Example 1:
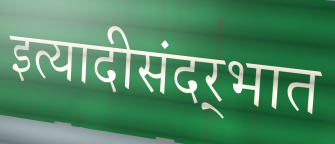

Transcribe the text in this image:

इत्यादीसंदर्भात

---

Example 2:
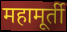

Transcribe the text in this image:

महामूर्ती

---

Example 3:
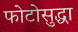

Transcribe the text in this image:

फोटोसुद्धा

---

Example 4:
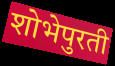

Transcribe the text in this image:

शोभेपुरती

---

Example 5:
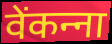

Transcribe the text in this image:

वेंकन्ना